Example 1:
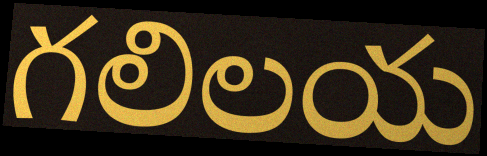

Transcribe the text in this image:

గలిలయ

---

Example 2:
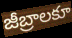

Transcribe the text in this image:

జీబ్రాలకూ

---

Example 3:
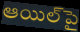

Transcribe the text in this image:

ఆయిల్‌పై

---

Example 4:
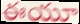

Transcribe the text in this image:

ఈయూ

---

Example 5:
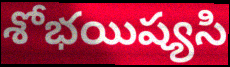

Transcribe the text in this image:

శోభయిష్యసి